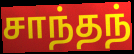
சாந்தந்